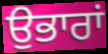
ਉਭਾਰਾਂ